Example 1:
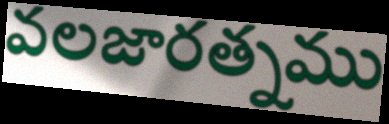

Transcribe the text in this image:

వలజారత్నము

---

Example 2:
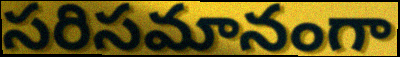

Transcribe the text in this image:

సరిసమానంగా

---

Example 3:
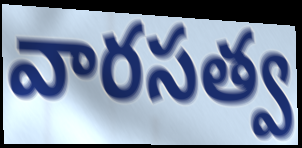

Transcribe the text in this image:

వారసత్వ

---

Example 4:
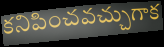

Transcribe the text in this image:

కనిపించవచ్చుగాక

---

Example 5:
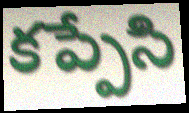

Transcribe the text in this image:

కప్పేసి